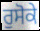
ਰੁਸੋਕੇ